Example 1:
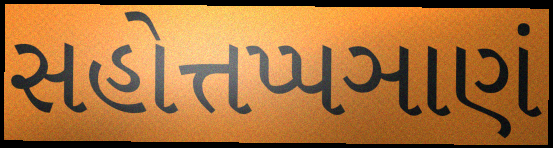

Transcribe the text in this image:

સહોત્તપ્પઞાણં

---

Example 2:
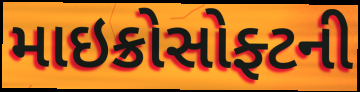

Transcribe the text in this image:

માઇક્રોસોફ્ટની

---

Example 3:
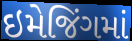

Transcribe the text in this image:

ઇમેજિંગમાં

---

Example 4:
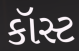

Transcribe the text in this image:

કૉસ્ટ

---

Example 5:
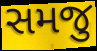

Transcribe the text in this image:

સમજુ